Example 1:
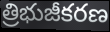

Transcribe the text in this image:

త్రిభుజీకరణ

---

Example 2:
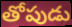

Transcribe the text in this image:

తోపుడు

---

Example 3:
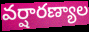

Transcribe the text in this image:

వర్షారణ్యాల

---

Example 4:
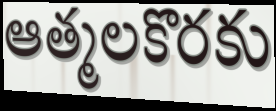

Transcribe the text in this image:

ఆత్మలకొరకు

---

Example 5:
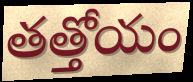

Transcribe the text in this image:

తత్తోయం